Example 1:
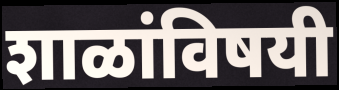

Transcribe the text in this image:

शाळांविषयी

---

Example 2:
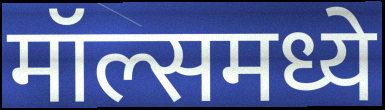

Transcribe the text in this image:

मॉल्समध्ये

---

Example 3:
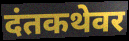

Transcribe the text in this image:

दंतकथेवर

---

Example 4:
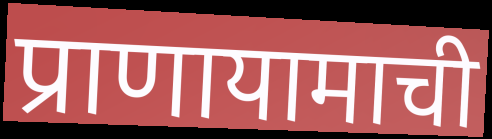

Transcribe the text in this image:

प्राणायामाची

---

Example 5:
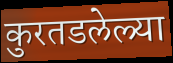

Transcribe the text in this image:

कुरतडलेल्या